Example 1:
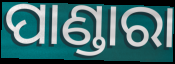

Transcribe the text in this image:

ପାଣ୍ଡାରା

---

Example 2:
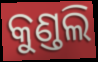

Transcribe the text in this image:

କୁଣ୍ଡଲି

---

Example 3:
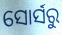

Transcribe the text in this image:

ସୋର୍ସରୁ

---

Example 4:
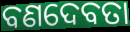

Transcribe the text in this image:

ବଣଦେବତା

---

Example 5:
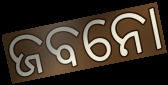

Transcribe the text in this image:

ଜବନୋ